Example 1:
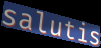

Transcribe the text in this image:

salutis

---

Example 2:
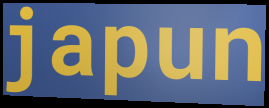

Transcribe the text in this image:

japun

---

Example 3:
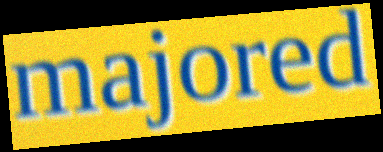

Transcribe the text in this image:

majored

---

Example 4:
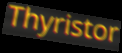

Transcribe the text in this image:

Thyristor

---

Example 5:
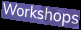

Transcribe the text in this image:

Workshops